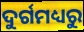
ଦୁର୍ଗମଧ୍ୟରୁ